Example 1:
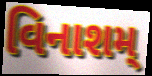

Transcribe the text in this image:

વિનાશમ્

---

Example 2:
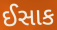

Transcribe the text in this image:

ઈસાક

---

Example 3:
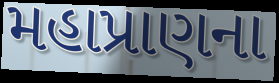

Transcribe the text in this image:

મહાપ્રાણના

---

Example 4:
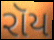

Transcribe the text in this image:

રૉય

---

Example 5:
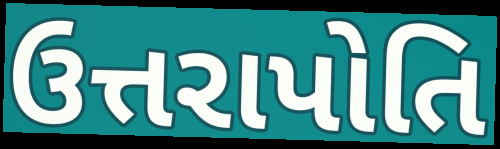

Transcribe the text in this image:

ઉત્તરાપોતિ